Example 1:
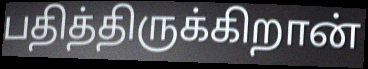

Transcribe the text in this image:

பதித்திருக்கிறான்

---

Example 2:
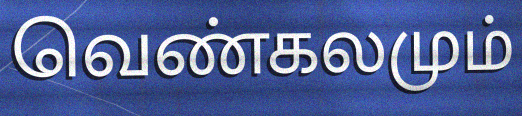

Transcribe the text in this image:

வெண்கலமும்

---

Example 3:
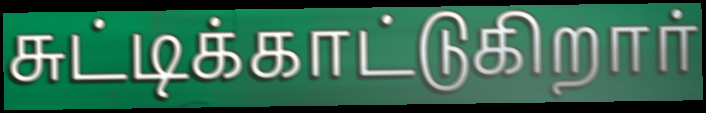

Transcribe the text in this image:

சுட்டிக்காட்டுகிறார்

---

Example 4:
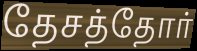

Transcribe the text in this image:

தேசத்தோர்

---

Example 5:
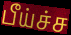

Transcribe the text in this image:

பீய்ச்ச